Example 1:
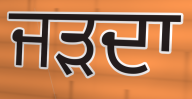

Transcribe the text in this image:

ਜੜਦਾ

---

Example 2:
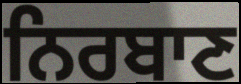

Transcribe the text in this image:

ਨਿਰਬਾਣ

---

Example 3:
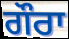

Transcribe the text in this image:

ਗੌਰਾ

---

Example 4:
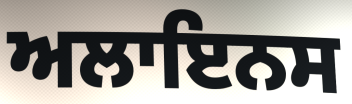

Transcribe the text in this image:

ਅਲਾਇਨਸ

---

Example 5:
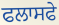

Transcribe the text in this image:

ਫਲਾਸਫੇ